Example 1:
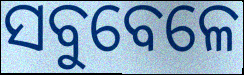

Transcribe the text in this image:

ସବୁବେଳେ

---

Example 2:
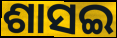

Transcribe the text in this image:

ଶାସଇ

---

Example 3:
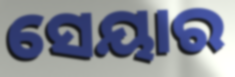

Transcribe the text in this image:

ସେୟାର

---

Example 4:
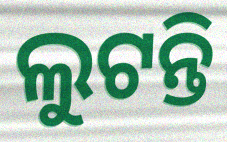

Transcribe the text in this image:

ଲୁଟନ୍ତି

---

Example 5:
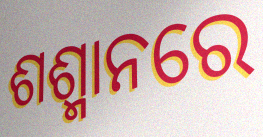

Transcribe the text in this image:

ଶଶ୍ମାନରେ